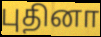
புதினா